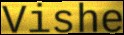
Vishe